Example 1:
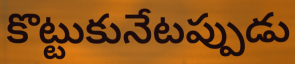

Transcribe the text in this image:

కొట్టుకునేటప్పుడు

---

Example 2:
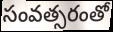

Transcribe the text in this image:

సంవత్సరంతో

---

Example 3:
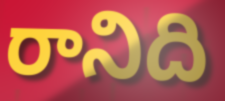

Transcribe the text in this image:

రానిది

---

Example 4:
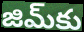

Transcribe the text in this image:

జిమ్‌కు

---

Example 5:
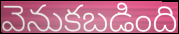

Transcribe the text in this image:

వెనుకబడింది